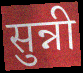
सुन्नी